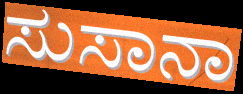
ಸುಸಾನಾ